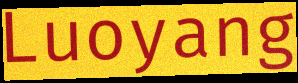
Luoyang